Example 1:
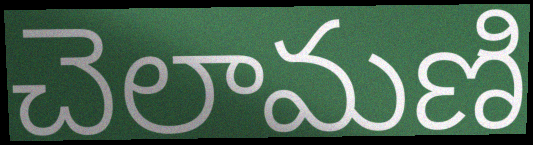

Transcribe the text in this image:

చెలామణి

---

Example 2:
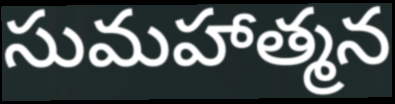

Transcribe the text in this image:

సుమహాత్మన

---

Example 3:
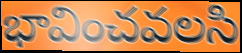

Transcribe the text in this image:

భావించవలసి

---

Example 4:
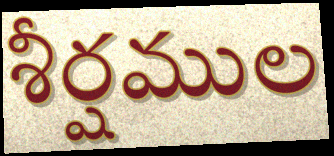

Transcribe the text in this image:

శీర్షముల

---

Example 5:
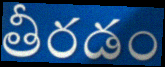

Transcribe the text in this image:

తీరడం